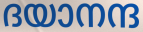
ദയാനന്ദ